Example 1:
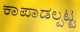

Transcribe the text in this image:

ಕಾಪಾಡಲ್ಪಟ್ಟ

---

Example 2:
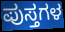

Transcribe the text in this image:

ಪುಸ್ತಗಳ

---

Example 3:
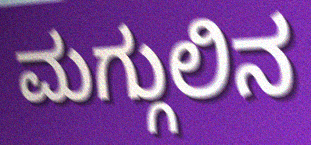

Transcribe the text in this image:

ಮಗ್ಗುಲಿನ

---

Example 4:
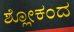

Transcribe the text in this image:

ಶ್ಲೋಕಂದ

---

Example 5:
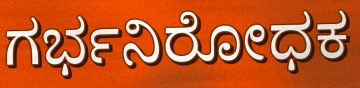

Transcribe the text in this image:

ಗರ್ಭನಿರೋಧಕ